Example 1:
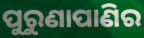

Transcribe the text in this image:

ପୁରୁଣାପାଣିର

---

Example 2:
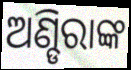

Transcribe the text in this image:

ଅଣ୍ଡିରାଙ୍କ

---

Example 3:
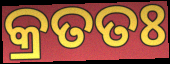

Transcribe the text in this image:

କ୍ରତତଃ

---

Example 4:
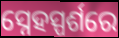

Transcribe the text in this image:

ସ୍ନେହସ୍ପର୍ଶରେ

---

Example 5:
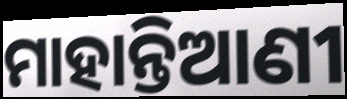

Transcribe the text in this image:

ମାହାନ୍ତିଆଣୀ